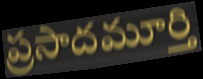
ప్రసాదమూర్తి